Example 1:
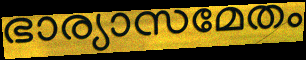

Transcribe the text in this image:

ഭാര്യാസമേതം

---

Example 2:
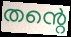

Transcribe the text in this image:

തന്റെ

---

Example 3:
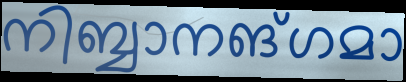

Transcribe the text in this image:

നിബ്ബാനങ്ഗമാ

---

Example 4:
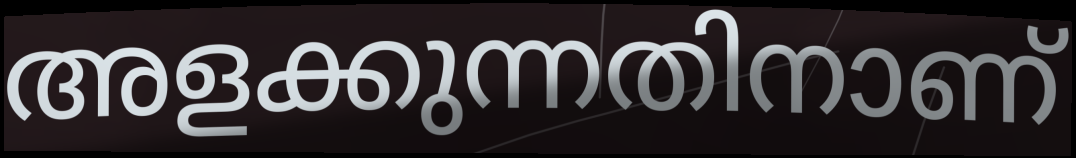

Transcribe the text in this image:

അളക്കുന്നതിനാണ്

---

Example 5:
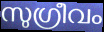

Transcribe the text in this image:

സുഗ്രീവം